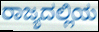
ರಾಜ್ಯದಲ್ಲಿಯ